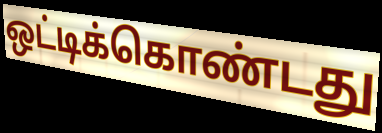
ஒட்டிக்கொண்டது